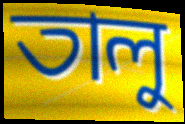
তালু